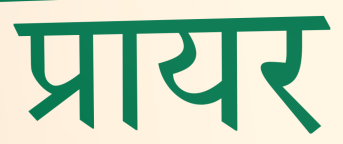
प्रायर